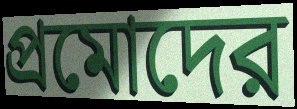
প্রমোদের